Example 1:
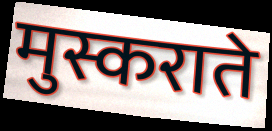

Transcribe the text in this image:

मुस्‍कराते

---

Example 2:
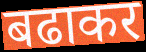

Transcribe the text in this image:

बढाकर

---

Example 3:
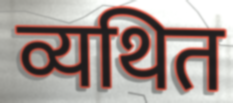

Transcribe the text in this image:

व्यथित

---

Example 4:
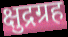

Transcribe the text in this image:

क्षुद्रग्रह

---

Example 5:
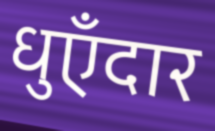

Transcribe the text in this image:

धुएँदार